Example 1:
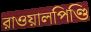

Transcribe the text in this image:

রাওয়ালপিণ্ডি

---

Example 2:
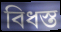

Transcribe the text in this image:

বিধস্ত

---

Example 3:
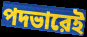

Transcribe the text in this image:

পদভারেই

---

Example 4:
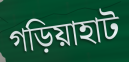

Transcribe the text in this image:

গড়িয়াহাট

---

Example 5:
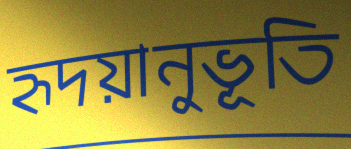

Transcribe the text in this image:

হৃদয়ানুভূতি